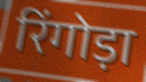
रिंगोड़ा